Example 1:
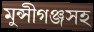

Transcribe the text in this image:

মুন্সীগঞ্জসহ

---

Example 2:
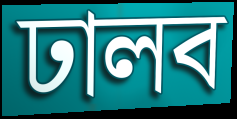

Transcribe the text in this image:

ঢালব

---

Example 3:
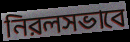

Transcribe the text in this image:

নিরলসভাবে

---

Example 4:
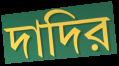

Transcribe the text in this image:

দাদির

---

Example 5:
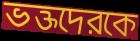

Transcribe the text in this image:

ভক্তদেরকে